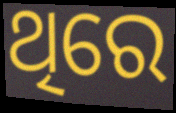
ଥିରେ